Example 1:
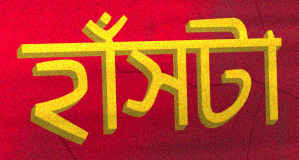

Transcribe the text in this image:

হাঁসটা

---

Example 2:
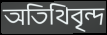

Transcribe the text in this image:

অতিথিবৃন্দ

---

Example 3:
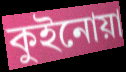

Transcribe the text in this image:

কুইনোয়া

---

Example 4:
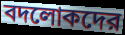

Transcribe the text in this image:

বদলোকদের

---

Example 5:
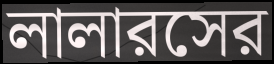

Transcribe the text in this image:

লালারসের